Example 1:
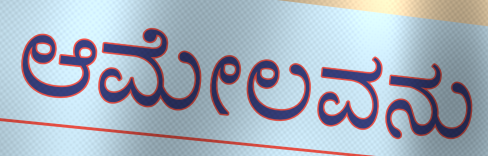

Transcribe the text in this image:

ಆಮೇಲವನು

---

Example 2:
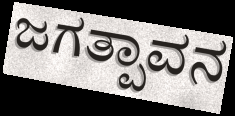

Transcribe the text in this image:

ಜಗತ್ಪಾವನ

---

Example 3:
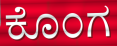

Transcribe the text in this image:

ಕೊಂಗ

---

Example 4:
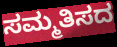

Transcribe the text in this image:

ಸಮ್ಮತಿಸದ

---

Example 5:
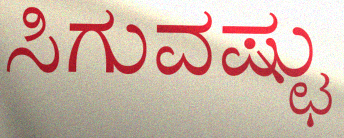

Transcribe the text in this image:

ಸಿಗುವಷ್ಟು